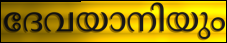
ദേവയാനിയും